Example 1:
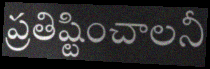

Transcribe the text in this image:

ప్రతిష్టించాలనీ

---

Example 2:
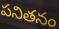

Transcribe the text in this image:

పనితనం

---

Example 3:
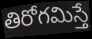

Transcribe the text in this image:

తిరోగమిస్తే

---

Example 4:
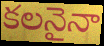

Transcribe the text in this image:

కలనైనా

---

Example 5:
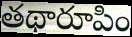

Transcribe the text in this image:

తథారూపిం